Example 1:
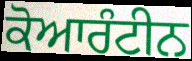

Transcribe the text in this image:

ਕੋਆਰੰਟੀਨ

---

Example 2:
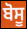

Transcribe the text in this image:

ਬੋਸੂ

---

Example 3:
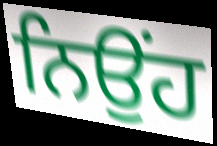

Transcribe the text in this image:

ਨਿਉਂਹ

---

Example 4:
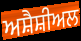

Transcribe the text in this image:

ਅਸ਼ੈਸ਼ੀਅਲ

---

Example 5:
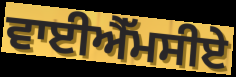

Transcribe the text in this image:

ਵਾਈਐੱਮਸੀਏ